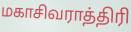
மகாசிவராத்திரி